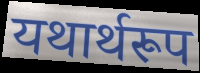
यथार्थरूप